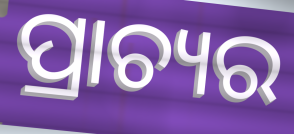
ପ୍ରାଚ୍ୟର